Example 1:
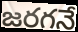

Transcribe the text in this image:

జరగనే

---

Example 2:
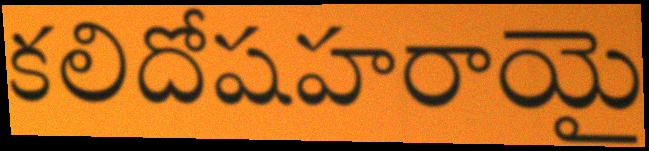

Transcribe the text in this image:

కలిదోషహరాయై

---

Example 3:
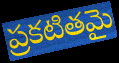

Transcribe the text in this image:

ప్రకటితమై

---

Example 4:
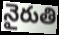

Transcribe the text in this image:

నైరుతి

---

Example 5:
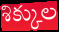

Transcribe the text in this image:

శిక్కుల